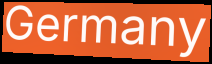
Germany